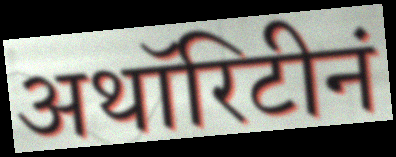
अथॉरिटीनं